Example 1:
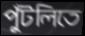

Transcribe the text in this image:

পুঁটলিতে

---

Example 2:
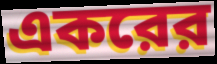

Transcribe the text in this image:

একরের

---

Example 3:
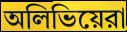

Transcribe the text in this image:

অলিভিয়েরা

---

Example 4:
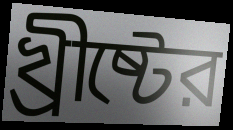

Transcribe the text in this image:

খ্রীষ্টের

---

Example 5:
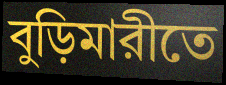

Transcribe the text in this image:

বুড়িমারীতে